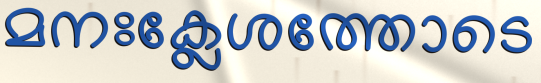
മനഃക്ലേശത്തോടെ